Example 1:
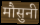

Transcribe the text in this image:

मौसुनी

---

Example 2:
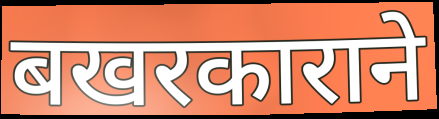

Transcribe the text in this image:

बखरकाराने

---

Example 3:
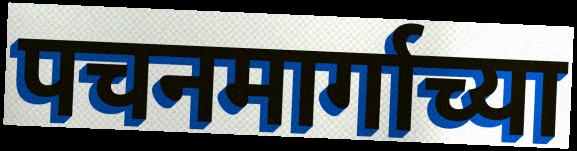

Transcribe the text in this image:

पचनमार्गाच्या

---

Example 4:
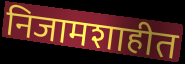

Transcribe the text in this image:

निजामशाहीत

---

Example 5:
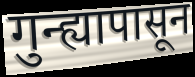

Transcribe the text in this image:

गुन्ह्यापासून